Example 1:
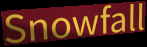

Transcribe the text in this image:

Snowfall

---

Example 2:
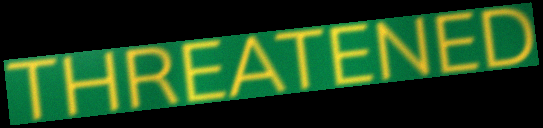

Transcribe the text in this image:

THREATENED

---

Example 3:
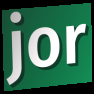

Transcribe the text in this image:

jor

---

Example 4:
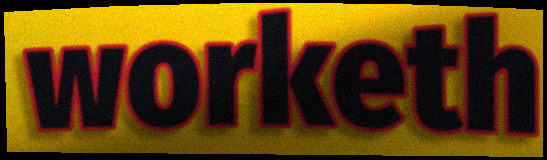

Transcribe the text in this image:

worketh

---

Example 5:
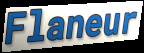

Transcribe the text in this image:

Flaneur